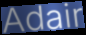
Adair